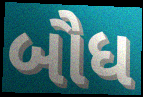
બૌધ